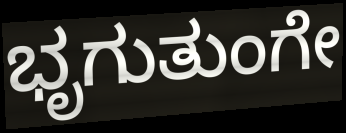
ಭೃಗುತುಂಗೇ